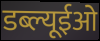
डब्ल्यूईओ